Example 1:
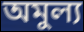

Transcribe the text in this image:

অমুল্য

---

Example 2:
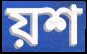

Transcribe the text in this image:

য়শ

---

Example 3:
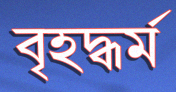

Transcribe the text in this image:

বৃহদ্ধৰ্ম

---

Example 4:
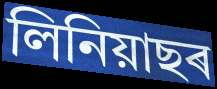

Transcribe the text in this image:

লিনিয়াছৰ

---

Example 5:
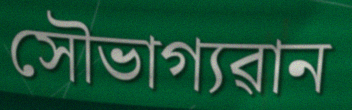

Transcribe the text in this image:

সৌভাগ্যৱান